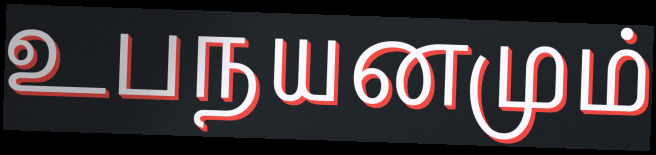
உபநயனமும்